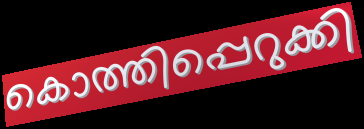
കൊത്തിപ്പെറുക്കി